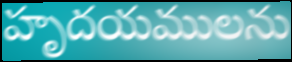
హృదయములను